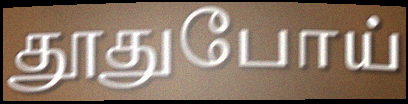
தூதுபோய்